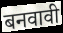
बनवावी